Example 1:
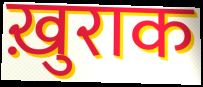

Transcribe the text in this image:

ख़ुराक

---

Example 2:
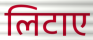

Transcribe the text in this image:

लिटाए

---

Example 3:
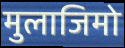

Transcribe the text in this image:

मुलाजिमो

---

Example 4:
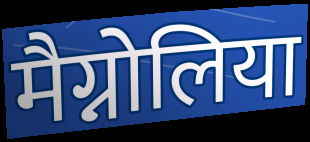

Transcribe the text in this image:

मैग्नोलिया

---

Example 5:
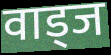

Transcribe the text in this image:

वाड्ज